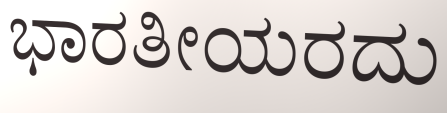
ಭಾರತೀಯರದು